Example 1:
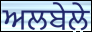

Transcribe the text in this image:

ਅਲਬੇਲੇ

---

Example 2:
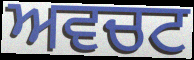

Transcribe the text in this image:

ਅਵਚਟ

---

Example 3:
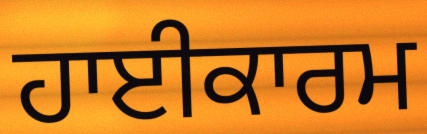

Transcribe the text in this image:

ਹਾਈਕਾਰਮ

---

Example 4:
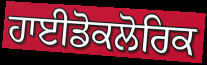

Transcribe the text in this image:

ਹਾਈਡੋਕਲੋਰਿਕ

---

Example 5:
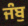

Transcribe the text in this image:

ਜੰਬੁ